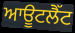
ਆਊਟਲੈੱਟ